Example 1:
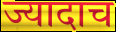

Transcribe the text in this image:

ज्यादाच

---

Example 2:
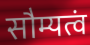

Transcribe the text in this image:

सौम्यत्वं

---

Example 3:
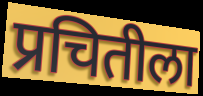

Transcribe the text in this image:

प्रचितीला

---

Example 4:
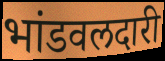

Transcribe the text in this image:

भांडवलदारी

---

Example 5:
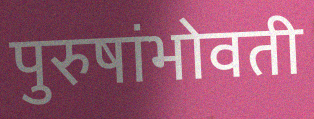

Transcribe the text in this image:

पुरुषांभोवती